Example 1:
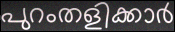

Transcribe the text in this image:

പുറംതളിക്കാർ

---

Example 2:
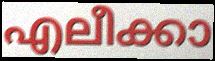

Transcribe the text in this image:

എലീക്കാ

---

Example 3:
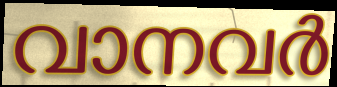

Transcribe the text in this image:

വാനവർ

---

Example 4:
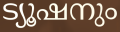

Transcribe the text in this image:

ട്യൂഷനും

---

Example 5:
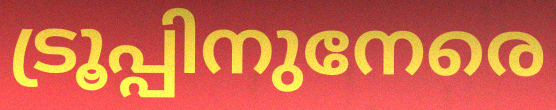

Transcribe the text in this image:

ട്രൂപ്പിനുനേരെ